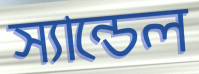
স্যান্ডেল